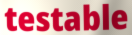
testable